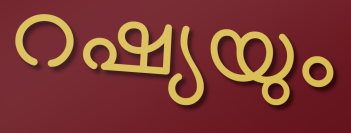
റഷ്യയും